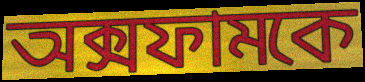
অক্সফামকে